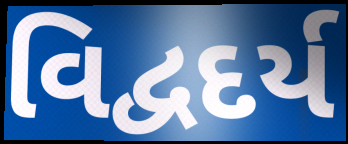
વિદ્વદર્ય